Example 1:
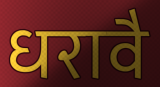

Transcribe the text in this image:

धरावै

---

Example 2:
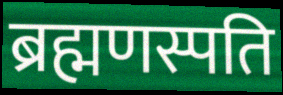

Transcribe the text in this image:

ब्रह्मणस्पति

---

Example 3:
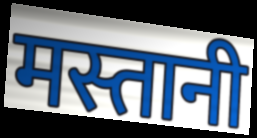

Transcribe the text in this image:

मस्‍तानी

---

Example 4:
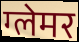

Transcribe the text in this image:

ग्लेमर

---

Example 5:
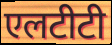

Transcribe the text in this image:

एलटीटी